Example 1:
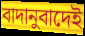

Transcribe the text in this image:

বাদানুবাদেই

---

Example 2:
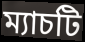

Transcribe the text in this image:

ম্যাচটি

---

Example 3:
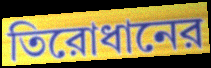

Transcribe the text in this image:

তিরোধানের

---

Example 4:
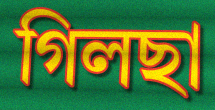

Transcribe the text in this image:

গিলছা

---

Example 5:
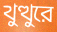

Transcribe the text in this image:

থুত্থুরে